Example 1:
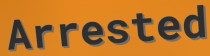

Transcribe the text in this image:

Arrested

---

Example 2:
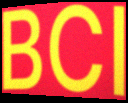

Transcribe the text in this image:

BCI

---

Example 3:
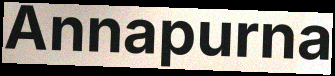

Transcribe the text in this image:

Annapurna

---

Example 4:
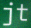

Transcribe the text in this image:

jt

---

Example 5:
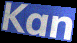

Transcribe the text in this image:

Kan